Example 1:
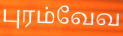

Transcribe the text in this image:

புரம்வேவ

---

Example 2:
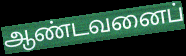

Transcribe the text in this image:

ஆண்டவனைப்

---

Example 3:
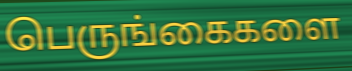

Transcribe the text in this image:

பெருங்கைகளை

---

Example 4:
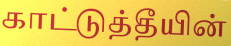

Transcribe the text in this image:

காட்டுத்தீயின்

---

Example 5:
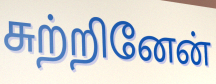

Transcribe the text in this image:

சுற்றினேன்